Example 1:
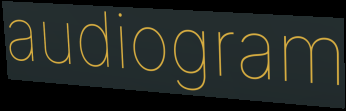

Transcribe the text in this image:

audiogram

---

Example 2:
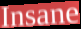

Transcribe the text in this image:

Insane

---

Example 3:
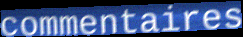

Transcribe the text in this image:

commentaires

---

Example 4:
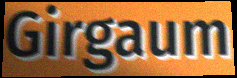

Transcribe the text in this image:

Girgaum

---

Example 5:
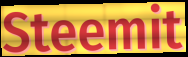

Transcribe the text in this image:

Steemit